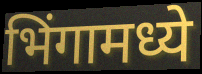
भिंगामध्ये